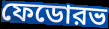
ফেডোরভ